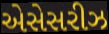
એસેસરીઝ